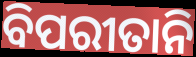
ବିପରୀତାନି